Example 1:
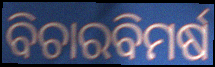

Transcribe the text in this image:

ବିଚାରବିମର୍ଷ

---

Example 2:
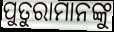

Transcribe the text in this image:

ପୁତୁରାମାନଙ୍କୁ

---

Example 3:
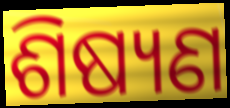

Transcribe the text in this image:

ଶିଷ୍ୟଣ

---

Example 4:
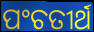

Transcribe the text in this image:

ପଂଚତୀର୍ଥ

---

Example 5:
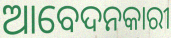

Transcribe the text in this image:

ଆବେଦନକାରୀ